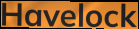
Havelock